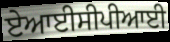
ਏਆਈਸੀਪੀਆਈ